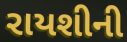
રાયશીની